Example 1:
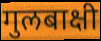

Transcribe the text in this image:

गुलबाक्षी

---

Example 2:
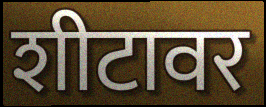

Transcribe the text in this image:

शीटावर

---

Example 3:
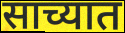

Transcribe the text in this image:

साच्यात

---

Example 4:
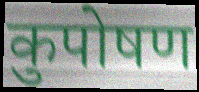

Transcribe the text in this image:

कुपोषण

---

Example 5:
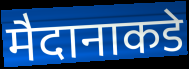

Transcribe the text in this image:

मैदानाकडे